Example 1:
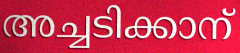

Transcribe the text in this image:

അച്ചടിക്കാന്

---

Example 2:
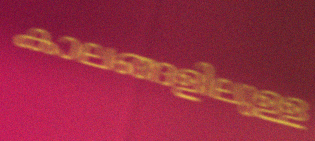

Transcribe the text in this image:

കാലങ്ങളിലുള്ള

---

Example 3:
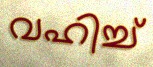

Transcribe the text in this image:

വഹിച്ച്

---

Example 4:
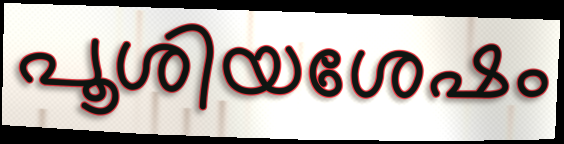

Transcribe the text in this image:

പൂശിയശേഷം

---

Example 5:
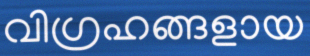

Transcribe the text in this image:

വിഗ്രഹങ്ങളായ